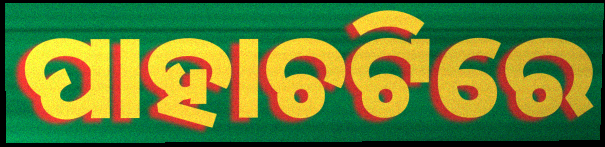
ପାହାଚଟିରେ